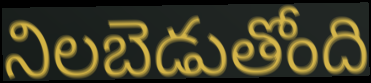
నిలబెడుతోంది